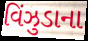
વિંઝુડાના